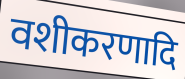
वशीकरणादि